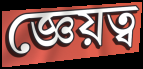
জ্ঞেয়ত্ব